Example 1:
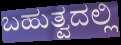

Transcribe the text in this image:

ಬಹುತ್ವದಲ್ಲಿ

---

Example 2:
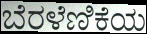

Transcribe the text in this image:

ಬೆರಳೆಣಿಕೆಯ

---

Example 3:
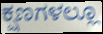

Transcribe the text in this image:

ಕ್ಷಣಗಳಲ್ಲೂ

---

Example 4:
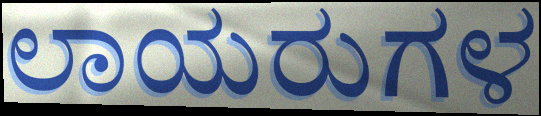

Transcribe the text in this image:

ಲಾಯರುಗಳ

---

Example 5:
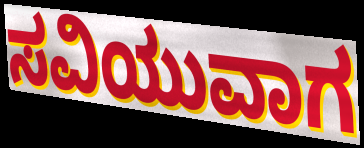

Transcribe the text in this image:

ಸವಿಯುವಾಗ